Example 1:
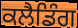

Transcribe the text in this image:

ਕਲੈਡਿੰਗ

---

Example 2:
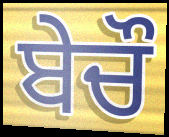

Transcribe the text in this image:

ਬੇਚੌ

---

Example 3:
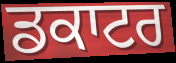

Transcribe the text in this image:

ਡਕਾਟਰ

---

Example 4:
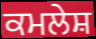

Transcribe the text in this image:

ਕਮਲੇਸ਼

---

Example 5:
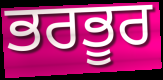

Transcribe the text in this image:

ਭਰਭੂਰ